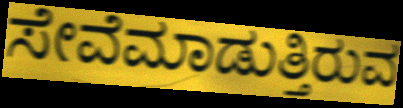
ಸೇವೆಮಾಡುತ್ತಿರುವ